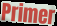
Primer